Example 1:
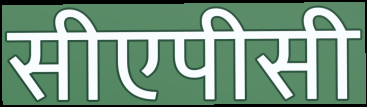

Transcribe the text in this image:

सीएपीसी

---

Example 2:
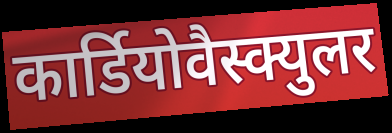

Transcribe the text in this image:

कार्डियोवैस्क्युलर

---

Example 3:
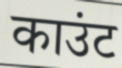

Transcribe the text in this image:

काउंट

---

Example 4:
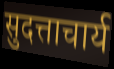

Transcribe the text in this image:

सुदत्ताचार्य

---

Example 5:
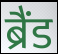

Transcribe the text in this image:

ब्रैंड